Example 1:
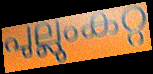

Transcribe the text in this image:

പുല്ലുംകറ്റ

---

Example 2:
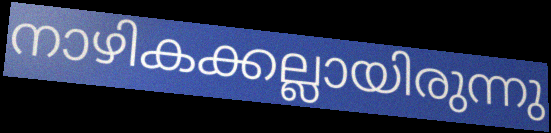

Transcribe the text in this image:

നാഴികക്കല്ലായിരുന്നു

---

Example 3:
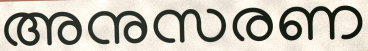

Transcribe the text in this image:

അനുസരണ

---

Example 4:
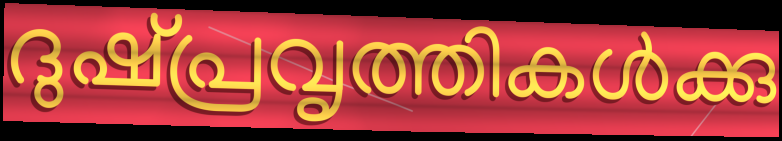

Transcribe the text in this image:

ദുഷ്പ്രവൃത്തികൾക്കു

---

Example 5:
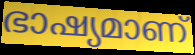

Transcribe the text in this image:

ഭാഷ്യമാണ്